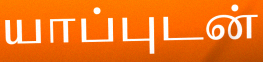
யாப்புடன்